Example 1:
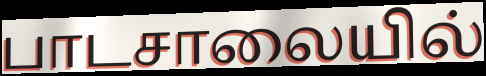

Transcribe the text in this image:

பாடசாலையில்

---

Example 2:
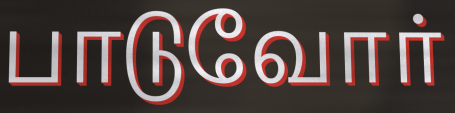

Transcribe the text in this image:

பாடுவோர்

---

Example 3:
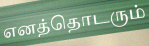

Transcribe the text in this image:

எனத்தொடரும்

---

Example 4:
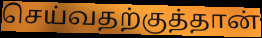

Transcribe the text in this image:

செய்வதற்குத்தான்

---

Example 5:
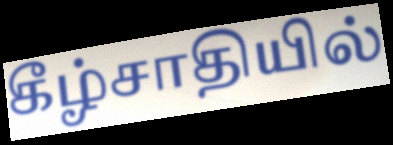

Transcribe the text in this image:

கீழ்சாதியில்